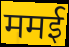
ममई